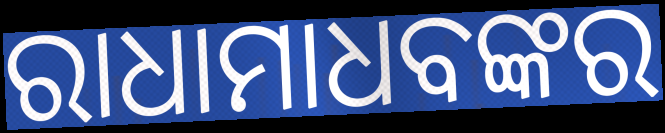
ରାଧାମାଧବଙ୍କର